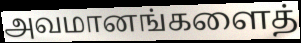
அவமானங்களைத்